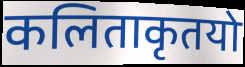
कलिताकृतयो